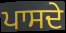
ਪਾਸਦੇ